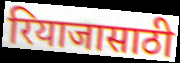
रियाजासाठी